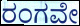
ರಂಗವೇ